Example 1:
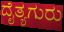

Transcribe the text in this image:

ದೈತ್ಯಗುರು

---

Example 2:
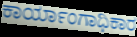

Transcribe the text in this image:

ಕಾರ್ಯಾಂಗಾಧಿಕಾರ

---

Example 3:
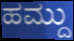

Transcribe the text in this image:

ಹಮ್ದು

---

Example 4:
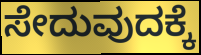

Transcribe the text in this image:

ಸೇದುವುದಕ್ಕೆ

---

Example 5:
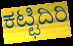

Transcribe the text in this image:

ಕಟ್ಟಿದಿರಿ